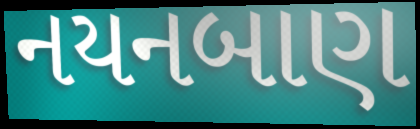
નયનબાણ